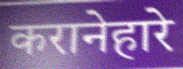
करानेहारे